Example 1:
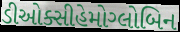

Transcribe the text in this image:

ડીઓક્સીહેમોગ્લોબિન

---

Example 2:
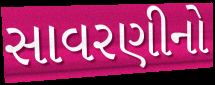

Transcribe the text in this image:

સાવરણીનો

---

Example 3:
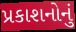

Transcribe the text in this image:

પ્રકાશનોનું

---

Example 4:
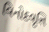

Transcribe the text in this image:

વિનોદવૃત્તિ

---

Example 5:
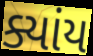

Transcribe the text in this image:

ક્યાંય